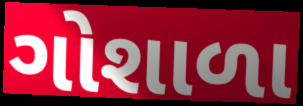
ગોશાળા